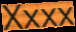
Xxxx